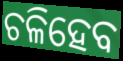
ଚଳିହେବ